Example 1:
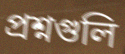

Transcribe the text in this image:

প্রশ্নগুলি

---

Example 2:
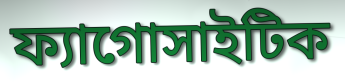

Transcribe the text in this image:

ফ্যাগোসাইটিক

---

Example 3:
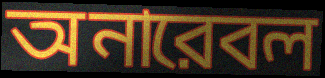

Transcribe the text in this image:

অনারেবল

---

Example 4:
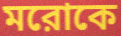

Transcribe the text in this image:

মরোকে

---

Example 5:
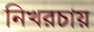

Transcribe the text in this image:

নিখরচায়